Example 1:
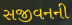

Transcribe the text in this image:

સજીવનની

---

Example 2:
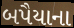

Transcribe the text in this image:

બપૈયાના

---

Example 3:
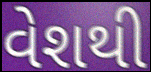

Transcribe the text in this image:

વેશથી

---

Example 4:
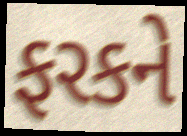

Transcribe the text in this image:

ફરકને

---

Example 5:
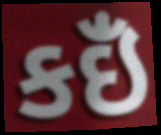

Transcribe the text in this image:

કઇઁં